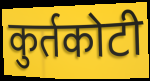
कुर्तकोटी